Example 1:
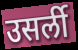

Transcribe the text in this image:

उसर्ली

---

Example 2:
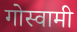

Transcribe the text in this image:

गोस्वामी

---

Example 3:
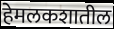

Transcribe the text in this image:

हेमलकशातील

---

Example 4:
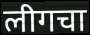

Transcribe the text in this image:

लीगचा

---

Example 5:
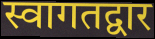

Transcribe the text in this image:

स्वागतद्वार